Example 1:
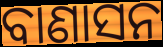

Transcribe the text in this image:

ବାଣାସନ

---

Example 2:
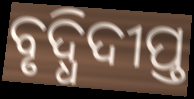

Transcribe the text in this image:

ବୃଦ୍ଧିଦୀପ୍ତ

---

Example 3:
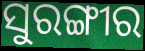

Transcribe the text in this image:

ସୁରଙ୍ଗୀର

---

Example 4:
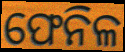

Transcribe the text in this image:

ଫେନିଳ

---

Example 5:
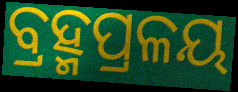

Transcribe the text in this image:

ବ୍ରହ୍ମପ୍ରଳୟ